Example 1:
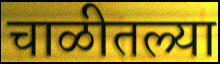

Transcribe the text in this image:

चाळीतल्या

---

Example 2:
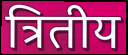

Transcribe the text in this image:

त्रितीय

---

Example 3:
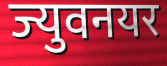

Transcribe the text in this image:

ज्युवनयर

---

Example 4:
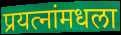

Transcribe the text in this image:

प्रयत्नांमधला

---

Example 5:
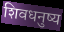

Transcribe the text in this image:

शिवधनुष्य